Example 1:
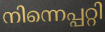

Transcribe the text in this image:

നിന്നെപ്പറ്റി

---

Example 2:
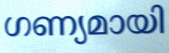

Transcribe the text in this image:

ഗണ്യമായി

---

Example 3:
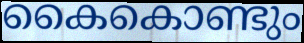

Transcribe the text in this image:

കൈകൊണ്ടും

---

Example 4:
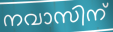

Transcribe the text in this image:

നവാസിന്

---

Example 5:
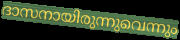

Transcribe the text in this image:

ദാസനായിരുന്നുവെന്നും